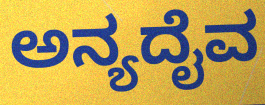
ಅನ್ಯದೈವ